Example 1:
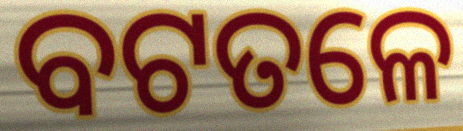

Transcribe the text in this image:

ବଟତଳେ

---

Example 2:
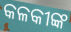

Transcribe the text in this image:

କଳକୀଙ୍କ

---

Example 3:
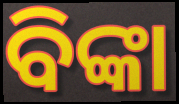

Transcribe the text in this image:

ବିଙ୍କା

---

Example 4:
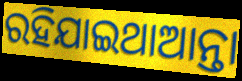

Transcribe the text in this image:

ରହିଯାଇଥାଆନ୍ତା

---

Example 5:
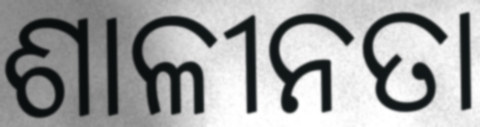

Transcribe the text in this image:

ଶାଳୀନତା